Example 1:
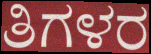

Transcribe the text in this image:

ತಿಗಳರ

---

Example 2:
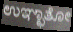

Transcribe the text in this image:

ಉಞ್ಛಾತೋ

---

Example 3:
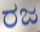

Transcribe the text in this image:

ರಜ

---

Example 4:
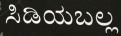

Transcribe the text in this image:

ಸಿಡಿಯಬಲ್ಲ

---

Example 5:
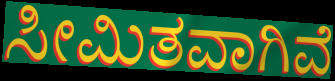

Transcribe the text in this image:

ಸೀಮಿತವಾಗಿವೆ